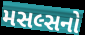
મસલ્સનો